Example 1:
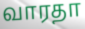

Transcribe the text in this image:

வாரதா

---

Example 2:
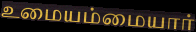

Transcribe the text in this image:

உமையம்மையார்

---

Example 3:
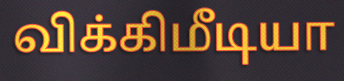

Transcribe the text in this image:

விக்கிமீடியா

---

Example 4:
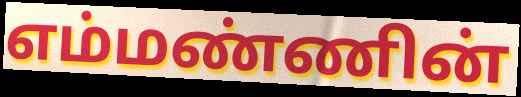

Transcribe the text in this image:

எம்மண்ணின்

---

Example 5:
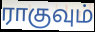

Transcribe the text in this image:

ராகுவும்